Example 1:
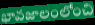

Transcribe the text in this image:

భావజాలంలోంచి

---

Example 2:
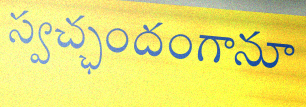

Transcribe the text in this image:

స్వచ్ఛందంగానూ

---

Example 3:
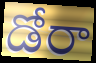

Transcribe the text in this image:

డోరా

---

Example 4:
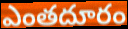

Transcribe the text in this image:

ఎంతదూరం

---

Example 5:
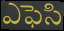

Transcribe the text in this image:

ఎఫెసి